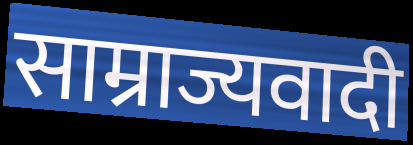
साम्राज्यवादी